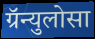
ग्रॅन्युलोसा